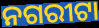
ନଗରୀଟା